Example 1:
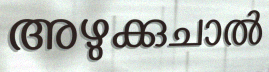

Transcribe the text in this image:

അഴുക്കുചാൽ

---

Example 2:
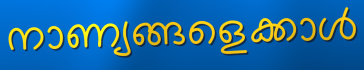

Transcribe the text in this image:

നാണ്യങ്ങളെക്കാൾ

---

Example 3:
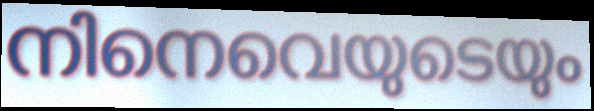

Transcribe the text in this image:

നിനെവെയുടെയും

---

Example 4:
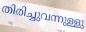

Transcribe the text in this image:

തിരിച്ചുവന്നുള്ളു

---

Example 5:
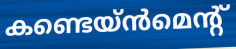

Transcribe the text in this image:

കണ്ടെയ്ൻമെന്റ്